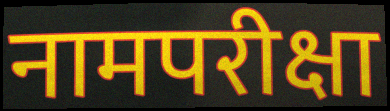
नामपरीक्षा